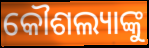
କୌଶଲ୍ୟାଙ୍କୁ